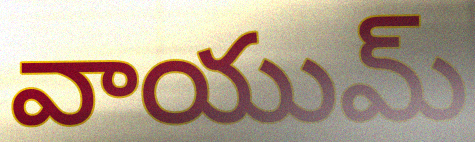
వాయుమ్